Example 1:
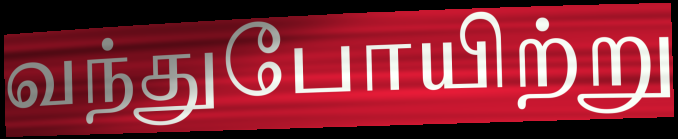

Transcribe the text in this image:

வந்துபோயிற்று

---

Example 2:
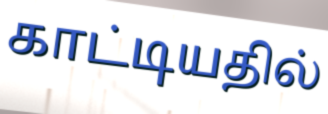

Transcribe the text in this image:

காட்டியதில்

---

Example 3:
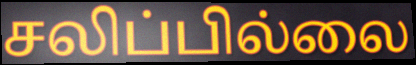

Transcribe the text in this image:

சலிப்பில்லை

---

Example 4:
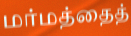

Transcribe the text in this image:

மர்மத்தைத்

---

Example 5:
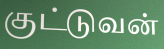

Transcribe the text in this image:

குட்டுவன்